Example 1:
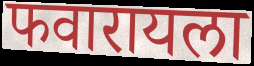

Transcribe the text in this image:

फवारायला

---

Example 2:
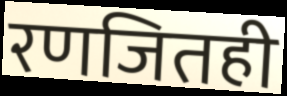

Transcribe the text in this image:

रणजितही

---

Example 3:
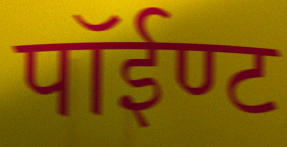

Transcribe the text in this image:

पॉईण्ट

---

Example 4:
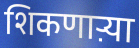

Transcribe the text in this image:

शिकणाऱ्‍या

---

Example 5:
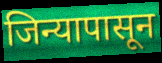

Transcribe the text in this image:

जिन्यापासून